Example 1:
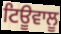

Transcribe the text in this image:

ਟਿਊਵਾਲੂ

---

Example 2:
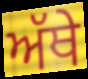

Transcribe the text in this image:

ਅੱਥੇ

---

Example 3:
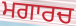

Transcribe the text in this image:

ਮਗਾਰਚ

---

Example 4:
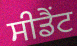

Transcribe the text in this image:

ਸੀਡੈਂਟ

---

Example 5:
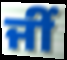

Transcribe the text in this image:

ਜੀਂ